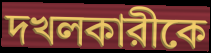
দখলকারীকে